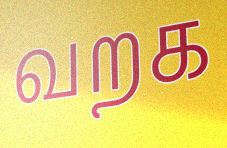
வறக